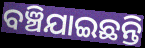
ବଞ୍ଚିଯାଇଛନ୍ତି